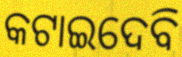
କଟାଇଦେବି